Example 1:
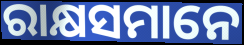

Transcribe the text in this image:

ରାକ୍ଷସମାନେ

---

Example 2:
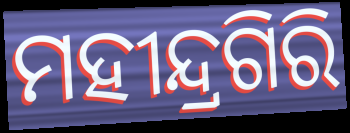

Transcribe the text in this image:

ମହୀନ୍ଦ୍ରଗିରି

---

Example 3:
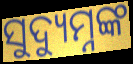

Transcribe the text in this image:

ସୁଦ୍ୟୁମ୍ନଙ୍କ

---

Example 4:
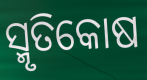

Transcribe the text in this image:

ସ୍ମୃତିକୋଷ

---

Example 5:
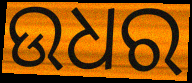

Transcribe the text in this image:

ଉଧର